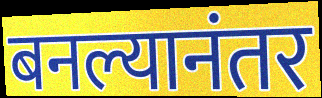
बनल्यानंतर